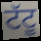
ਟੱਟੂ